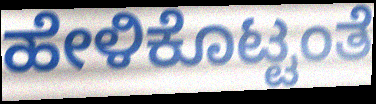
ಹೇಳಿಕೊಟ್ಟಂತೆ